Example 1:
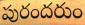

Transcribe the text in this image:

పురందరుం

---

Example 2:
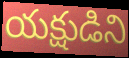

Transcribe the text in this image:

యక్షుడిని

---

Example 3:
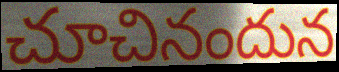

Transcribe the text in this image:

చూచినందున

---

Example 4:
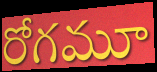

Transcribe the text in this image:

రోగమూ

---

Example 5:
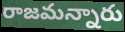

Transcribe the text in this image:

రాజమన్నారు